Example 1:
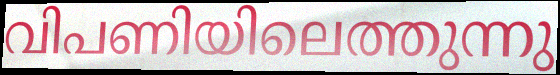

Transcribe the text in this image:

വിപണിയിലെത്തുന്നു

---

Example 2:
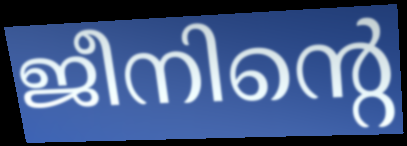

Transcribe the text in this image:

ജീനിന്റെ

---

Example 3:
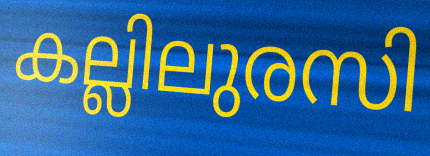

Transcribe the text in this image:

കല്ലിലുരസി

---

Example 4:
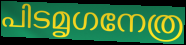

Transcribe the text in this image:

പിടമൃഗനേത്ര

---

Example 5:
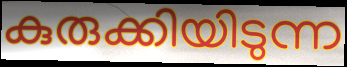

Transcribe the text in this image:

കുരുക്കിയിടുന്ന